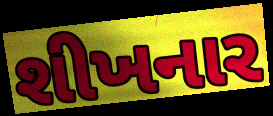
શીખનાર